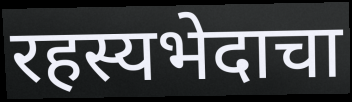
रहस्यभेदाचा